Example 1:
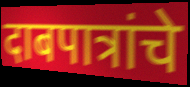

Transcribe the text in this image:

दाबपात्रांचे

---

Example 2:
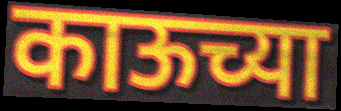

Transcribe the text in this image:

काऊच्या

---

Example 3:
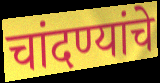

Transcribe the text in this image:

चांदण्यांचे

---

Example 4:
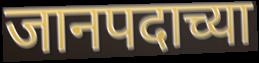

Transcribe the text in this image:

जानपदाच्या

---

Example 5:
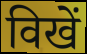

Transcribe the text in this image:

विखें